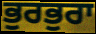
ਭੁਰਭੁਰਾ